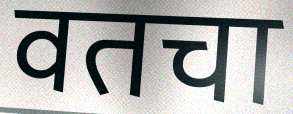
वतचा